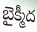
బైక్మీద